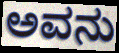
ಅವನು